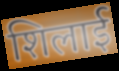
शिलाई